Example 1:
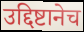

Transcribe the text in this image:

उद्दिष्टानेच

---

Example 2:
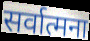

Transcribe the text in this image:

सर्वात्मना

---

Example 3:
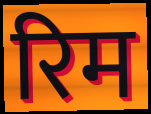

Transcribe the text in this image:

रिम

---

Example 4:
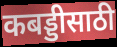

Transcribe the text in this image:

कबड्डीसाठी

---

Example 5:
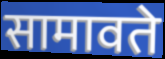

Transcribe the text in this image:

सामावते